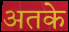
अतके